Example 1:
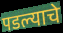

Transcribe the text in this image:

पडल्याचे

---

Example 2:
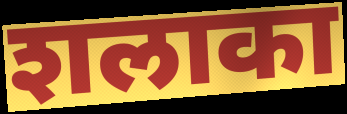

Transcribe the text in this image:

शलाका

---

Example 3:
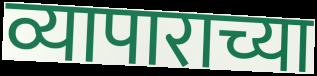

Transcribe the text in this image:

व्यापाराच्या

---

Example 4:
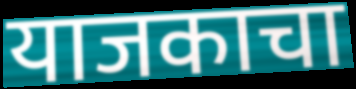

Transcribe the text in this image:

याजकाचा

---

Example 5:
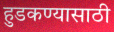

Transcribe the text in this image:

हुडकण्यासाठी